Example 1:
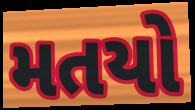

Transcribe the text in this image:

મતયો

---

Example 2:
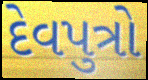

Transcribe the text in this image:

દેવપુત્રો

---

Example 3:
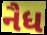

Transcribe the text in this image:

નૈધ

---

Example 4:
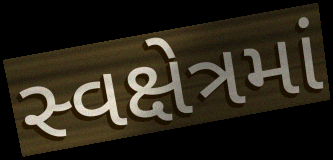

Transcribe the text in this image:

સ્વક્ષેત્રમાં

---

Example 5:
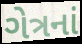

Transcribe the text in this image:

ગેત્રનાં